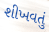
શીખવતું